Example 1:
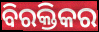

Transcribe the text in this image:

ବିରକ୍ତିକର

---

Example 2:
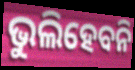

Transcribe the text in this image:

ଭୁଲିହେବନି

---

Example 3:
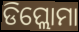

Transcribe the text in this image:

ଡିପ୍ଲୋମା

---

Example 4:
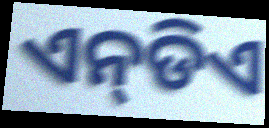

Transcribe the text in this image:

ଏନ୍‌ଡିଏ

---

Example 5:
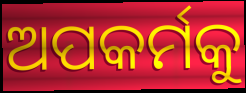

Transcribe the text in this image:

ଅପକର୍ମକୁ